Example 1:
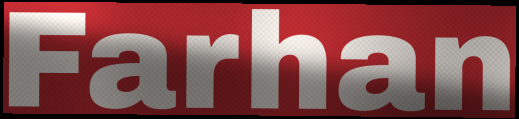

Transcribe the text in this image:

Farhan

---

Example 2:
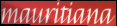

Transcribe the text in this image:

mauritiana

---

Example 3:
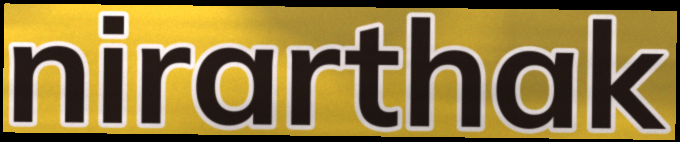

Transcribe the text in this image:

nirarthak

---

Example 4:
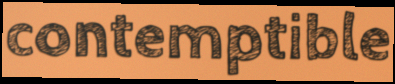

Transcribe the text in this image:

contemptible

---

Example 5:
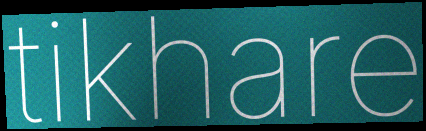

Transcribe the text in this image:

tikhare